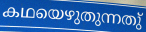
കഥയെഴുതുന്നതു്